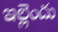
ఇల్లెందు